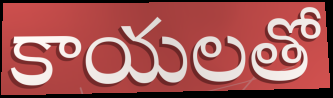
కాయలతో